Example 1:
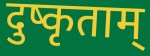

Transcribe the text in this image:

दुष्कृताम्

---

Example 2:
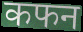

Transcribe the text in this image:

कफन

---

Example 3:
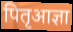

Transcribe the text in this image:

पितृआज्ञा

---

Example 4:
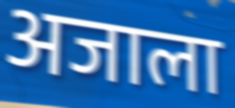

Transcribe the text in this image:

अजाला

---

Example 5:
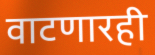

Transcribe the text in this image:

वाटणारही